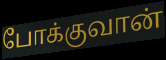
போக்குவான்